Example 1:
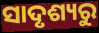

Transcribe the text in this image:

ସାଦୃଶ୍ୟରୁ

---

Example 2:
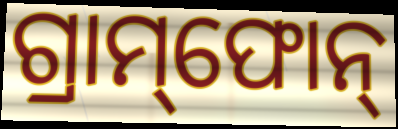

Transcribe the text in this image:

ଗ୍ରାମ୍‌ଫୋନ୍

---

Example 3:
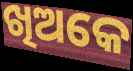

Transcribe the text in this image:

ଖିଅକେ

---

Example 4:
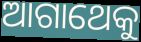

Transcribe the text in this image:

ଆଗାଥେକୁ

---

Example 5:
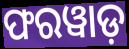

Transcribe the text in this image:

ଫରୱାଡ଼